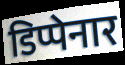
डिप्पेनार